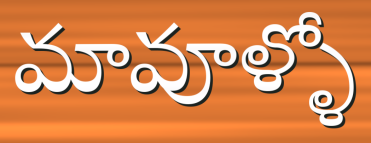
మావూళ్ళో